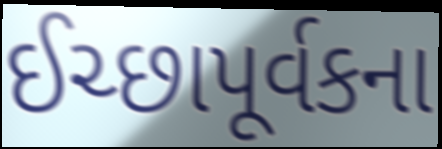
ઈચ્છાપૂર્વકના